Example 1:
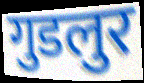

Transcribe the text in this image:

गुडलुर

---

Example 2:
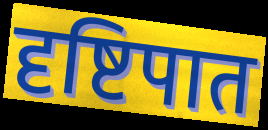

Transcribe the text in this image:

दृष्टिपात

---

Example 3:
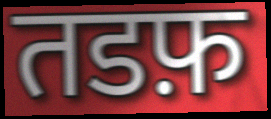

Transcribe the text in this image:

तडफ़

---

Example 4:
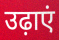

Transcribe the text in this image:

उढ़ाएं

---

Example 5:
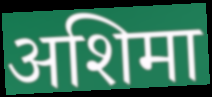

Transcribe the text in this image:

अशिमा